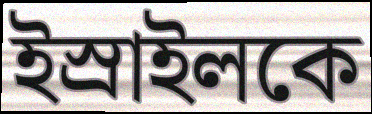
ইস্রাইলকে